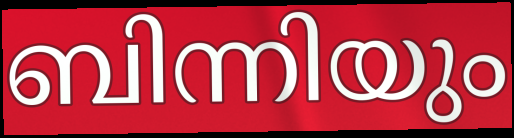
ബിന്നിയും